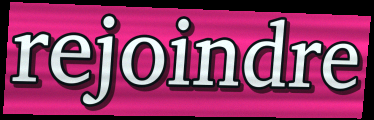
rejoindre